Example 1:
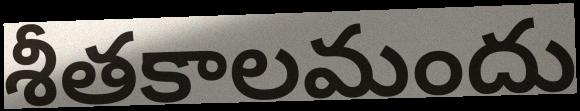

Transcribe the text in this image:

శీతకాలమందు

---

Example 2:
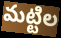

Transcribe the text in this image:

మట్టిల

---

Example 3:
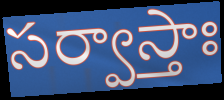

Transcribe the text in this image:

సర్వాస్తాః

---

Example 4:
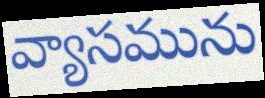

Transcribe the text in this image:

వ్యాసమును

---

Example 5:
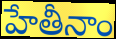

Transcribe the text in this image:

హేతీనాం